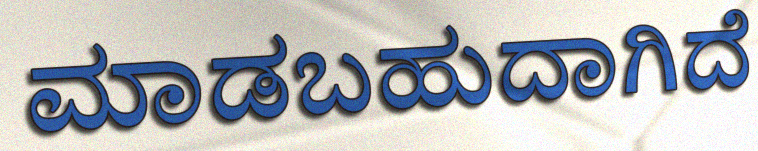
ಮಾಡಬಹುದಾಗಿದೆ